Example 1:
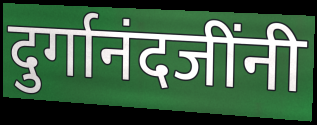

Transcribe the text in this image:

दुर्गानंदजींनी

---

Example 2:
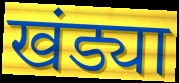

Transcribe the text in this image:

खंड्या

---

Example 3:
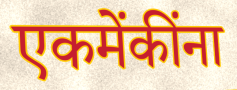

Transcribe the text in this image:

एकमेंकींना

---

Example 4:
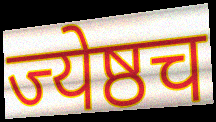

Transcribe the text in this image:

ज्येष्ठच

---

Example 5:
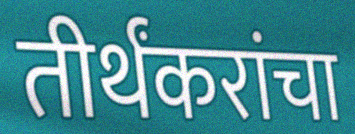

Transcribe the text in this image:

तीर्थंकरांचा